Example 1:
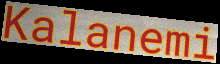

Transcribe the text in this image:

Kalanemi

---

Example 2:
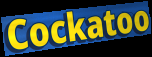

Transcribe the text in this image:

Cockatoo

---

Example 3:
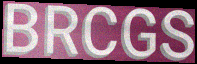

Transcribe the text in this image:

BRCGS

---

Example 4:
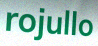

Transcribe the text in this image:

rojullo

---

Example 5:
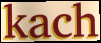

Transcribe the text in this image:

kach